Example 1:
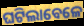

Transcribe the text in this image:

ଘଟିଲାବେଳେ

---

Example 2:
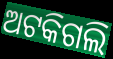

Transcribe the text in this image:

ଅଟକିଗଲି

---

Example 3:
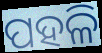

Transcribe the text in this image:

ପହଳି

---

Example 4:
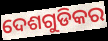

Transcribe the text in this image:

ଦେଶଗୁଡିକର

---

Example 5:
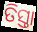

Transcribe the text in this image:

ତିସ୍ତା